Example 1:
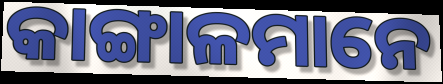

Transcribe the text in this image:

କାଙ୍ଗାଳମାନେ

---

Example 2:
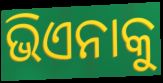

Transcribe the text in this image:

ଭିଏନାକୁ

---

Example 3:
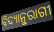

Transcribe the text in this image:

ବିଦ୍ୟାନୁରାଗୀ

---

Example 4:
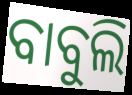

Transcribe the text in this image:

ବାବୁଲି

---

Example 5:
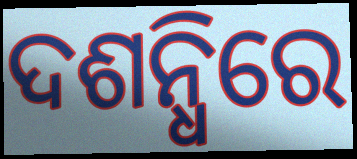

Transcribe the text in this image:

ଦଶନ୍ଧିରେ